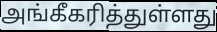
அங்கீகரித்துள்ளது